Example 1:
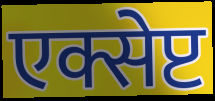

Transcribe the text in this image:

एक्सेप्ट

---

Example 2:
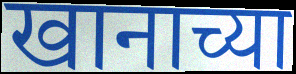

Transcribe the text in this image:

खानाच्या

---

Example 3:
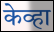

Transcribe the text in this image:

केव्हा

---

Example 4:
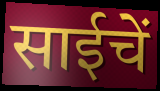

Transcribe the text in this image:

साईचें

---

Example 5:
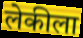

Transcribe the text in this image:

लेकीला